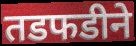
तडफडीने